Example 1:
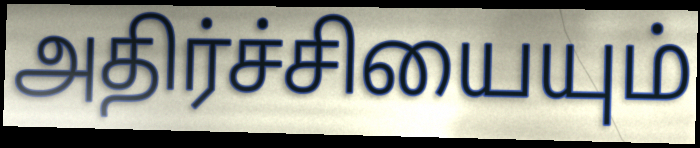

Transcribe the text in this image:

அதிர்ச்சியையும்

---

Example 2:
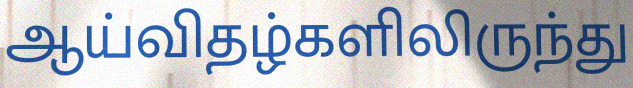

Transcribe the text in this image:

ஆய்விதழ்களிலிருந்து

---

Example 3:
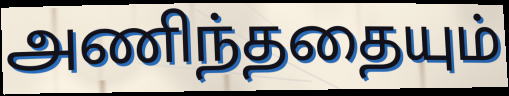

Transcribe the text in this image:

அணிந்ததையும்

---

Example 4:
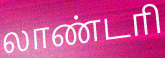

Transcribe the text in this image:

லாண்டரி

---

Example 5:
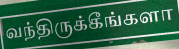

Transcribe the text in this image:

வந்திருக்கீங்களா